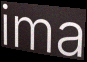
ima